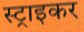
स्ट्राइकर